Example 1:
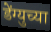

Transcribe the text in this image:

डेंग्युच्या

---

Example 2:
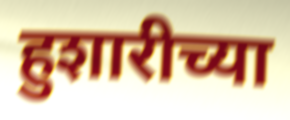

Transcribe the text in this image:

हुशारीच्या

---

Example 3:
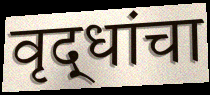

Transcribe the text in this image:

वृद्धांचा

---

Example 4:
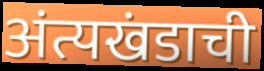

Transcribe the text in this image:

अंत्यखंडाची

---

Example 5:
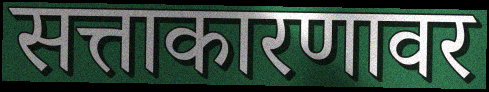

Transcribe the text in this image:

सत्ताकारणावर